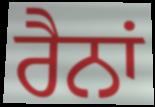
ਰੈਨਾਂ